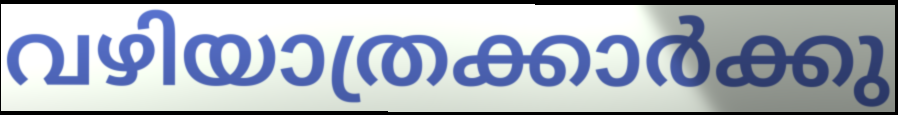
വഴിയാത്രക്കാർക്കു